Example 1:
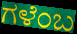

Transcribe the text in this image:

ಗಳೆಂಬ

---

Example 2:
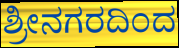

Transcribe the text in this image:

ಶ್ರೀನಗರದಿಂದ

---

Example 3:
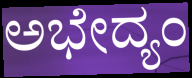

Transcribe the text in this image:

ಅಭೇದ್ಯಂ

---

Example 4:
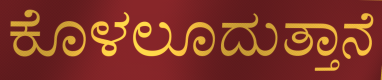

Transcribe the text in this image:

ಕೊಳಲೂದುತ್ತಾನೆ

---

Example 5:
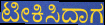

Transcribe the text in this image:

ಟೀಕಿಸಿದಾಗ